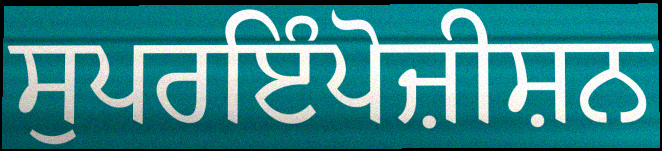
ਸੁਪਰਇੰਪੋਜ਼ੀਸ਼ਨ